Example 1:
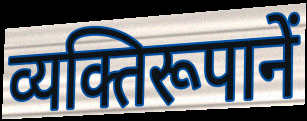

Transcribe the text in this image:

व्यक्तिरूपानें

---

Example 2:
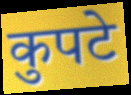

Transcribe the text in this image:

कुपटे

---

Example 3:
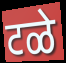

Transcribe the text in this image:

टळे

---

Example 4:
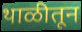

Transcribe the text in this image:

थाळीतून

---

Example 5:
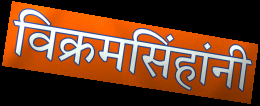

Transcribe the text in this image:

विक्रमसिंहांनी